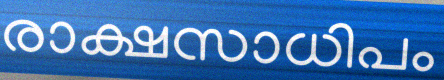
രാക്ഷസാധിപം